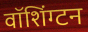
वॉशिंग्टन